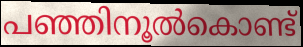
പഞ്ഞിനൂൽകൊണ്ട്